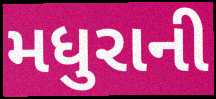
મધુરાની